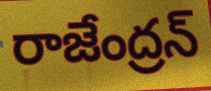
రాజేంద్రన్